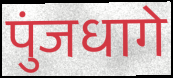
पुंजधागे